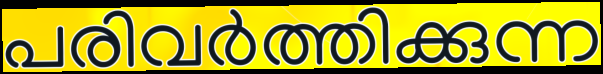
പരിവർത്തിക്കുന്ന